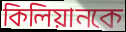
কিলিয়ানকে